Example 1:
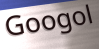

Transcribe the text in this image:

Googol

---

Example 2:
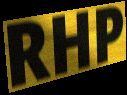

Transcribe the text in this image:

RHP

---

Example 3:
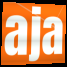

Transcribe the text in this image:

aja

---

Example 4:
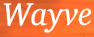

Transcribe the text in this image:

Wayve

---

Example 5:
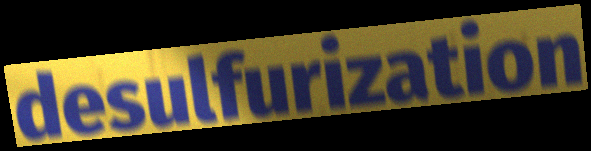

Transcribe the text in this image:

desulfurization